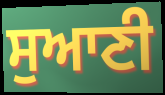
ਸੁਆਣੀ